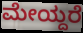
ಮೇಯ್ದರೆ